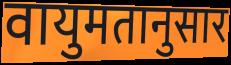
वायुमतानुसार